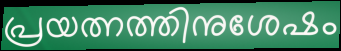
പ്രയത്നത്തിനുശേഷം